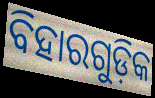
ବିହାରଗୁଡ଼ିକ